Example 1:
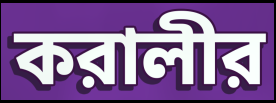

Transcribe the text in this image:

করালীর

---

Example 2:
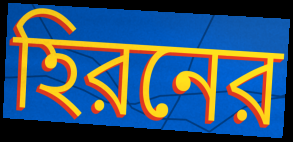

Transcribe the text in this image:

হিরনের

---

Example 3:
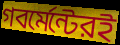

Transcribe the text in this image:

গবর্মেন্টেরই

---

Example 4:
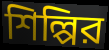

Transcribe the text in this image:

শিল্পির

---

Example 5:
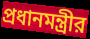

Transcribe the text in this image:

প্রধানমন্ত্রীর